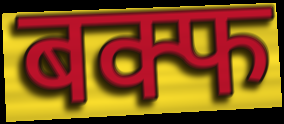
बक्फ